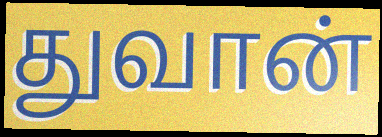
துவான்